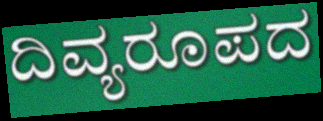
ದಿವ್ಯರೂಪದ